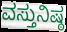
ವಸ್ತುನಿಷ್ಠ